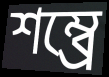
শম্ব্রে